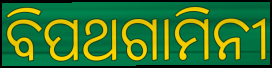
ବିପଥଗାମିନୀ